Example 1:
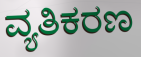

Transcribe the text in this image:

ವ್ಯತಿಕರಣ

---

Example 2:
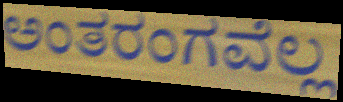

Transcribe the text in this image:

ಅಂತರಂಗವೆಲ್ಲ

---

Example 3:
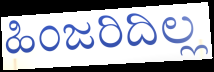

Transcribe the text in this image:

ಹಿಂಜರಿದಿಲ್ಲ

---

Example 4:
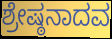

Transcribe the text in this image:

ಶ್ರೇಷ್ಠನಾದವ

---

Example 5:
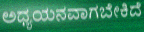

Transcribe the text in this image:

ಅಧ್ಯಯನವಾಗಬೇಕಿದೆ